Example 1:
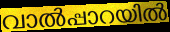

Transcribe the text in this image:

വാൽപ്പാറയിൽ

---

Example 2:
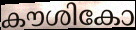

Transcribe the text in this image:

കൗശികോ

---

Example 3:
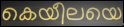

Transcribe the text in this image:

കെയീലയെ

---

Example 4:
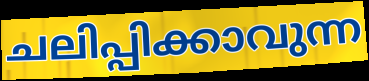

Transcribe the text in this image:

ചലിപ്പിക്കാവുന്ന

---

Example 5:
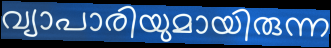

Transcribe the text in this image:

വ്യാപാരിയുമായിരുന്ന